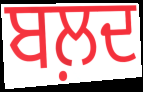
ਬਲ਼ਦ